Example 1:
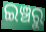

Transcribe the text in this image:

ଇଞ୍ଚରୁ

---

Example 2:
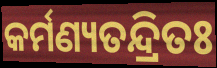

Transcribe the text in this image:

କର୍ମଣ୍ୟତନ୍ଦ୍ରିତଃ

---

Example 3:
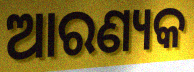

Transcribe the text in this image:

ଆରଣ୍ୟକ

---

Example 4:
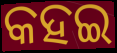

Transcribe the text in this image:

କହଇ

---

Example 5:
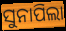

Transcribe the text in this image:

ସୁନାପିଲା